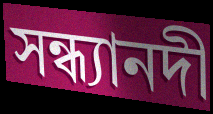
সন্ধ্যানদী